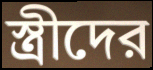
স্ত্রীদের